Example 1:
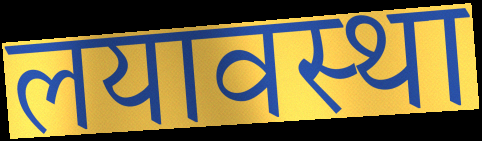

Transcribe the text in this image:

लयावस्था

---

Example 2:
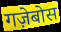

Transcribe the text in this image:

गज़ेबोस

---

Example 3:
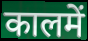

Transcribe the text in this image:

कालमें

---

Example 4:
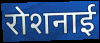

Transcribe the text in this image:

रोशनाई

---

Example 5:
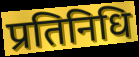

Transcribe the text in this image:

प्रतिनिधि